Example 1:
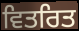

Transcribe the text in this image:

ਵਿਤਰਿਤ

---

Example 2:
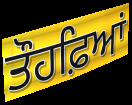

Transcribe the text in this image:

ਤੌਹਫ਼ਿਆਂ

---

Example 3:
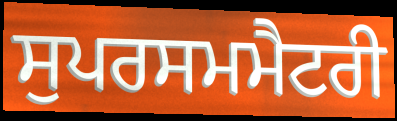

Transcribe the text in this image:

ਸੁਪਰਸਮਮੈਟਰੀ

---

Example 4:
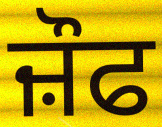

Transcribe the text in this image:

ਜ਼ੌਫ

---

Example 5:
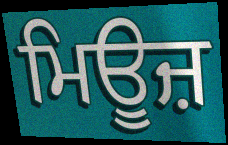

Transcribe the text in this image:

ਮਿਊਜ਼